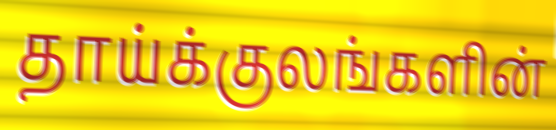
தாய்க்குலங்களின்